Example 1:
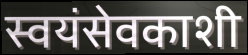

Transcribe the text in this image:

स्वयंसेवकाशी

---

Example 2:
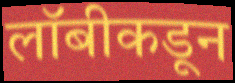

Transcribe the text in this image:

लॉबीकडून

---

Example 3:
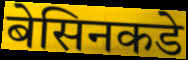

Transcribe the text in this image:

बेसिनकडे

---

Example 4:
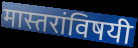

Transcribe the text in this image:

मास्तरांविषयी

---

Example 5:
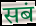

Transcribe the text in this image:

सबं